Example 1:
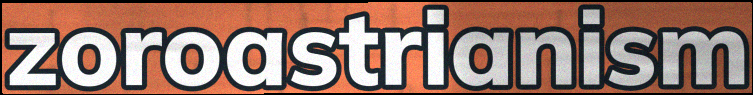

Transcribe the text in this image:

zoroastrianism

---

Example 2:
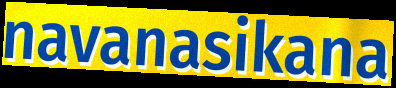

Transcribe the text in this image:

navanasikana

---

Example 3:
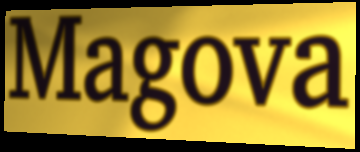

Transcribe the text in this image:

Magova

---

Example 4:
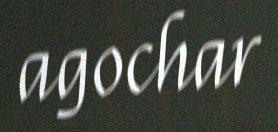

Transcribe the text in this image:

agochar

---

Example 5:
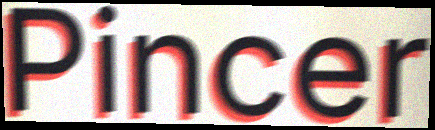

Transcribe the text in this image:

Pincer